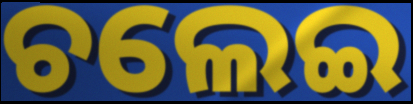
ଚଲେଇ